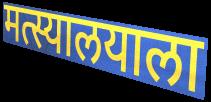
मत्स्यालयाला